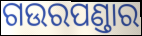
ଗଉରପଣ୍ଡାର